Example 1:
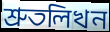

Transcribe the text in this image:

শ্রুতলিখন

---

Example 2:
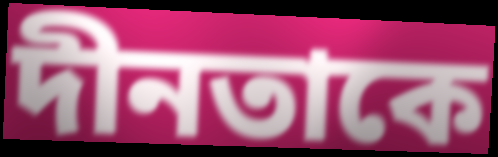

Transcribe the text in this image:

দীনতাকে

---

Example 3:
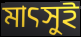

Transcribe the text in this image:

মাৎসুই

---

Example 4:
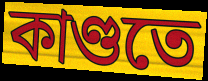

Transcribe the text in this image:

কাণ্ডতে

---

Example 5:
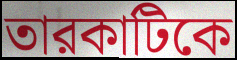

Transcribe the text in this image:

তারকাটিকে